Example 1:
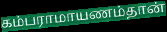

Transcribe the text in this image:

கம்பராமாயணம்தான்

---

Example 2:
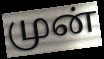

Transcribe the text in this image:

முன்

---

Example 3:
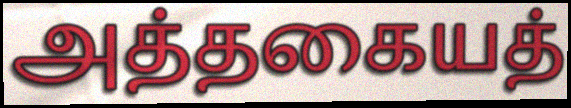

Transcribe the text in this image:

அத்தகையத்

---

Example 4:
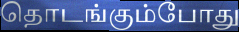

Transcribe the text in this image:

தொடங்கும்போது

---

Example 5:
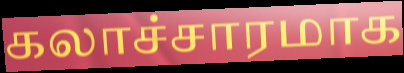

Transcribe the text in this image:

கலாச்சாரமாக